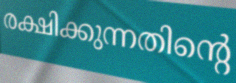
രക്ഷിക്കുന്നതിന്റെ